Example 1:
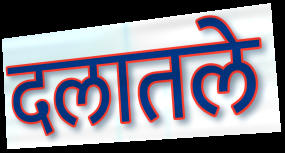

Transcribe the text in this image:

दलातले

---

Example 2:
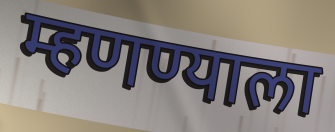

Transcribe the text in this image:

म्हणण्याला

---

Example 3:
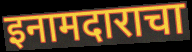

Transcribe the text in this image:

इनामदाराचा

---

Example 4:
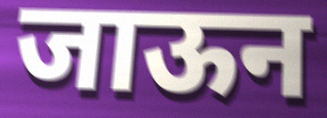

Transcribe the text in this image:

जाऊन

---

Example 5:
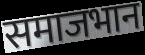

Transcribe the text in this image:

समाजभान